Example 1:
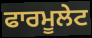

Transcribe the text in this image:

ਫਾਰਮੂਲੇਟ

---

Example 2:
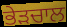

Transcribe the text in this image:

ਭੇੜਚਾਲ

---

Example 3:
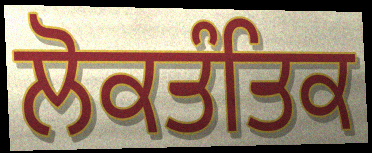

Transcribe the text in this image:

ਲੋਕਤੰਤਿਕ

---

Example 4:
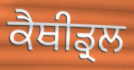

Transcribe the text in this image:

ਕੈਥੀਡ੍ਰਲ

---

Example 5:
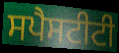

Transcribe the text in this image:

ਸਪੈਸਟੀਟੀ